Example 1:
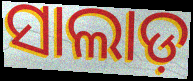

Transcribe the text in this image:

ସାଲାଡ଼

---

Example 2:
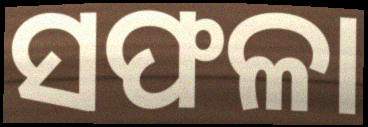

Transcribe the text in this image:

ସଫଳା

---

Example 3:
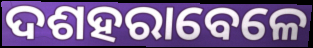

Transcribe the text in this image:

ଦଶହରାବେଳେ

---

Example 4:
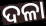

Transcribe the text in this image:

ଦଳା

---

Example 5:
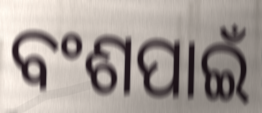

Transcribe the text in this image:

ବଂଶପାଇଁ